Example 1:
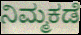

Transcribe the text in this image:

ನಿಮ್ಮಕಡೆ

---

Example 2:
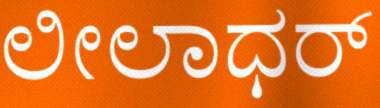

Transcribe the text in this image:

ಲೀಲಾಧರ್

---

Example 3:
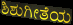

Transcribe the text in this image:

ಶಿಶುಗೀತೆಯ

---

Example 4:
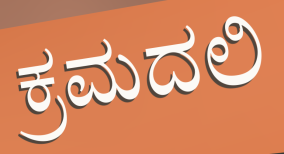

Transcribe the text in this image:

ಕ್ರಮದಲಿ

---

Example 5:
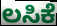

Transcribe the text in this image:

ಲಸಿಕೆ